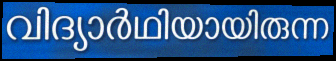
വിദ്യാർഥിയായിരുന്ന